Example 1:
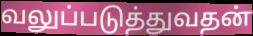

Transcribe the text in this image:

வலுப்படுத்துவதன்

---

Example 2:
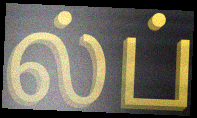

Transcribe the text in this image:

ல்ப்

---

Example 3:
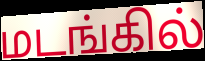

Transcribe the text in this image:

மடங்கில்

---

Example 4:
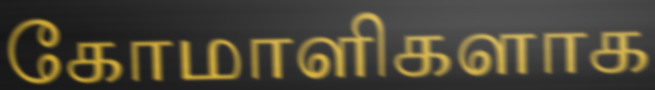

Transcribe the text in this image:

கோமாளிகளாக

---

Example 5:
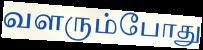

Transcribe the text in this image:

வளரும்போது